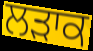
ਲੜਾਕ